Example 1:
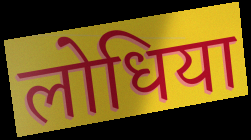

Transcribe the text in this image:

लोधिया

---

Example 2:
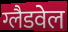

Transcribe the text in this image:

ग्लैडवेल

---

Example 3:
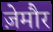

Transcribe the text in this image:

ज़ेमौर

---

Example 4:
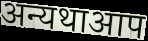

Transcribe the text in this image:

अन्यथाआप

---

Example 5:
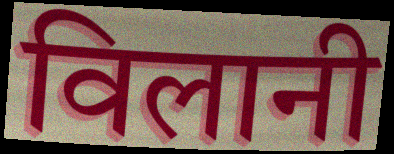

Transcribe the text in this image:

विलानी